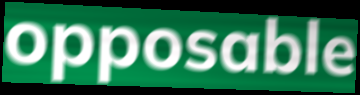
opposable